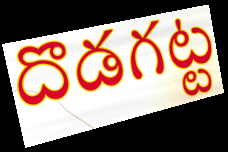
దొడగట్ట